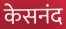
केसनंद